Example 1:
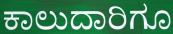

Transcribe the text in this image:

ಕಾಲುದಾರಿಗೂ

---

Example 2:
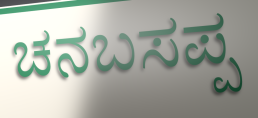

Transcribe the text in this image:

ಚನಬಸಪ್ಪ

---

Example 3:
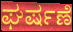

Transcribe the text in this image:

ಘರ್ಷಣೆ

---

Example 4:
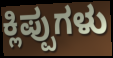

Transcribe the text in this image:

ಕ್ಲಿಪ್ಪುಗಳು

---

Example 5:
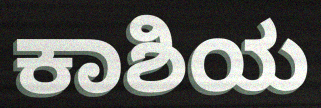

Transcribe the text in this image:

ಕಾಶಿಯ